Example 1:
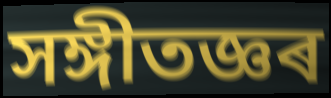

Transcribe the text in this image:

সঙ্গীতজ্ঞৰ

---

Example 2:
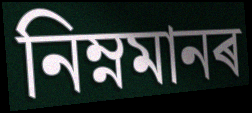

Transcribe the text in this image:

নিম্নমানৰ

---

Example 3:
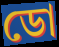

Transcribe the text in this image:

ডো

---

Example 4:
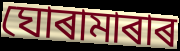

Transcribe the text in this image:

ঘোৰামাৰাৰ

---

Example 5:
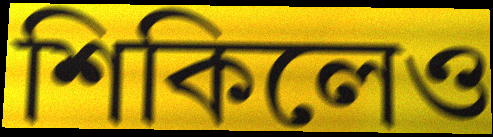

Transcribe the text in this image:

শিকিলেও